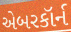
એબરકૉર્ન